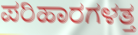
ಪರಿಹಾರಗಳತ್ತ